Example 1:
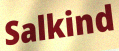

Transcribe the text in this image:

Salkind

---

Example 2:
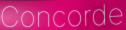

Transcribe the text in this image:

Concorde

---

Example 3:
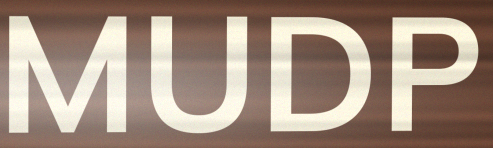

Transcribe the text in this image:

MUDP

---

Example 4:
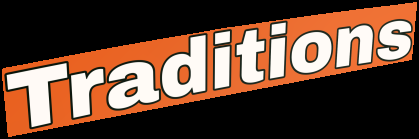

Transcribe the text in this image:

Traditions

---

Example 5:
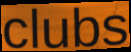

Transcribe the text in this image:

clubs